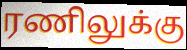
ரணிலுக்கு